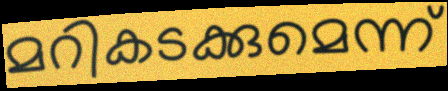
മറികടക്കുമെന്ന്